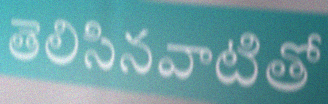
తెలిసినవాటితో